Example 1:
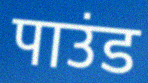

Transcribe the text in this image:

पाउंड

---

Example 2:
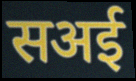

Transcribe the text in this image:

सअई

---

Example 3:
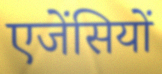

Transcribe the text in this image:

एजेंसियों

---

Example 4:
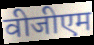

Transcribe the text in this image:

वीजीएम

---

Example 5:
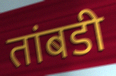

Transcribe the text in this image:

तांबडी